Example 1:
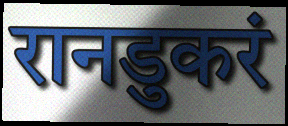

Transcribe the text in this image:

रानडुकरं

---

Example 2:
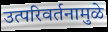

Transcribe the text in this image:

उत्परिवर्तनामुळे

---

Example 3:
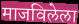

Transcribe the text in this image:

माजविलेला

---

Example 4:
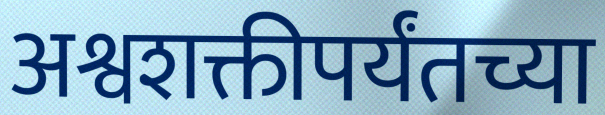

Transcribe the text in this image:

अश्वशक्तीपर्यंतच्या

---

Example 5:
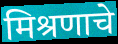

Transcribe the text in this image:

मिश्रणाचे